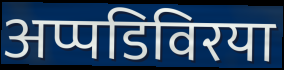
अप्पडिविरया